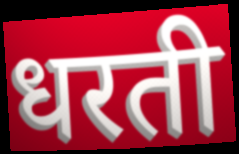
धरती